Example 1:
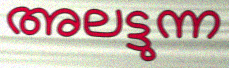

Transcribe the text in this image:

അലട്ടുന്ന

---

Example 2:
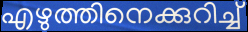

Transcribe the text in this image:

എഴുത്തിനെക്കുറിച്ച്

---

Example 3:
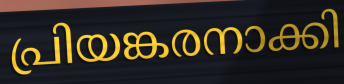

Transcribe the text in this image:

പ്രിയങ്കരനാക്കി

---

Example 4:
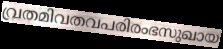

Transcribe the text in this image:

വ്രതമിവതവപരിരംഭസുഖായ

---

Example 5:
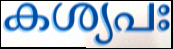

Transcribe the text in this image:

കശ്യപഃ